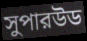
সুপারউড